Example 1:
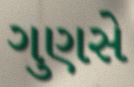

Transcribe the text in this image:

ગુણસે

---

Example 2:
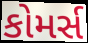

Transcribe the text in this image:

કોમર્સ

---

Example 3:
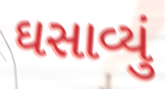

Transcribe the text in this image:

ઘસાવ્યું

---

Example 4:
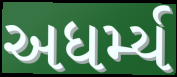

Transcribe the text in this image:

અધર્મ્ય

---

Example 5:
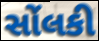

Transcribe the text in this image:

સોંલકી